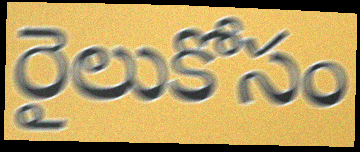
రైలుకోసం